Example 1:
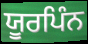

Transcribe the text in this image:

ਯੂਰਪਿੰਨ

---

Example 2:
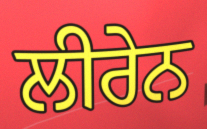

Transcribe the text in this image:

ਲੀਰੇਨ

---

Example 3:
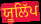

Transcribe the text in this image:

ਯੂਲਿੱਪ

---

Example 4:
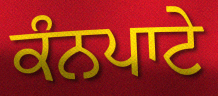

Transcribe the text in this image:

ਕੰਨਪਾਟੇ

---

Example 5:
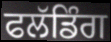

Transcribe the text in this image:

ਫਲੱਡਿੰਗ